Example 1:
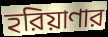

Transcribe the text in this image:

হরিয়াণার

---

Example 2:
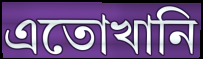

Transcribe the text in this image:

এতোখানি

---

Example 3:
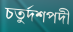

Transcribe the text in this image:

চতুর্দশপদী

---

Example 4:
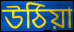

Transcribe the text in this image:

উঠিয়া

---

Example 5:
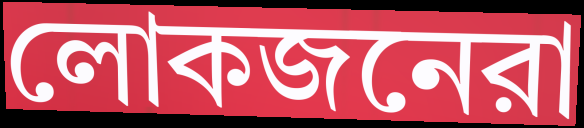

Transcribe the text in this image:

লোকজনেরা